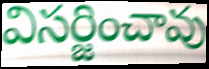
విసర్జించావు